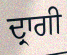
ਦ੍ਰਾਗੀ